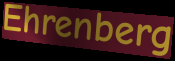
Ehrenberg